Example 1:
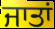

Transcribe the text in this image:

ਜਾਤਾਂ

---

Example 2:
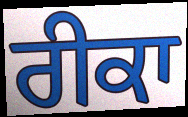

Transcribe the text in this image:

ਰੀਕਾ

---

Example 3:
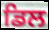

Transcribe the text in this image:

ਡਿਲ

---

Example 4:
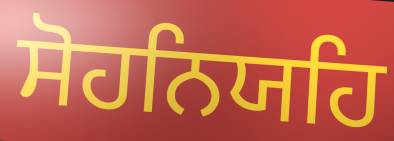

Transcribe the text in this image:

ਸੋਹਨਿਯਹਿ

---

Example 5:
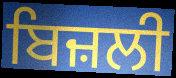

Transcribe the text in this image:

ਬਿਜ਼ਲੀ